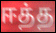
ஈத்த